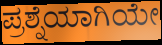
ಪ್ರಶ್ನೆಯಾಗಿಯೇ